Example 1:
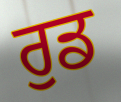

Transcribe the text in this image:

ਰੁਡ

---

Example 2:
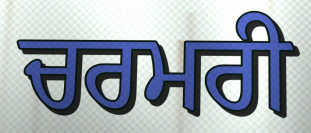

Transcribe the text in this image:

ਚਰਮਰੀ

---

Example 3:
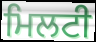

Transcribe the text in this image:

ਮਿਲਟੀ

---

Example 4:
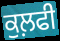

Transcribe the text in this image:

ਕੁਲ਼ਫੀ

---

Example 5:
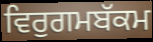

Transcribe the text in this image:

ਵਿਰੁਗਮਬੱਕਮ